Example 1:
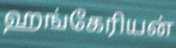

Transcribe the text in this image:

ஹங்கேரியன்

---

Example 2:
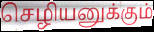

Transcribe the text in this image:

செழியனுக்கும்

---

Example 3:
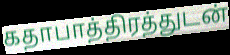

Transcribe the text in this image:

கதாபாத்திரத்துடன்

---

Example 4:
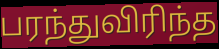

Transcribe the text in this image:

பரந்துவிரிந்த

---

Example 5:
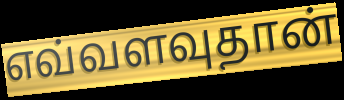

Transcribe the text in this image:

எவ்வளவுதான்